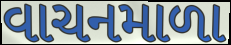
વાચનમાળા